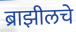
ब्राझीलचे